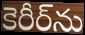
కెరీర్‌ను